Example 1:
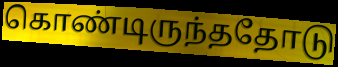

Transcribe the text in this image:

கொண்டிருந்ததோடு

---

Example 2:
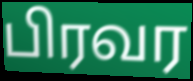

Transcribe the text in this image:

பிரவர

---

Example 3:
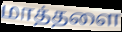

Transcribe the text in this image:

மாத்தளை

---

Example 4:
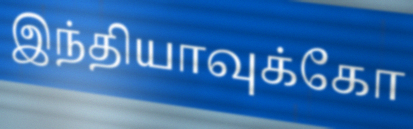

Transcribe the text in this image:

இந்தியாவுக்கோ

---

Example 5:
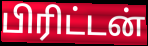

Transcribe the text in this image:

பிரிட்டன்